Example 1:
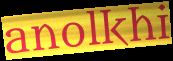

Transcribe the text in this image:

anolkhi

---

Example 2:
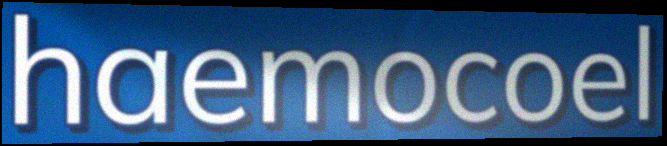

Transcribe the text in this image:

haemocoel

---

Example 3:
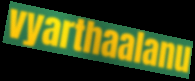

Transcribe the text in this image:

vyarthaalanu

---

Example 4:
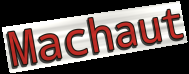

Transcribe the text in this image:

Machaut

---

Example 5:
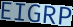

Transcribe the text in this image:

EIGRP